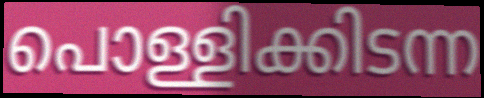
പൊള്ളിക്കിടന്ന